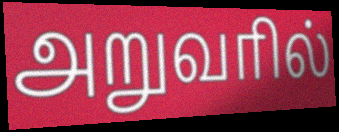
அறுவரில்